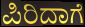
ಪಿರಿದಾಗೆ